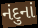
નંદુનાં